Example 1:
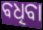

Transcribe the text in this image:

ବଧିବା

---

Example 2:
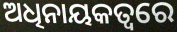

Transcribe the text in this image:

ଅଧିନାୟକତ୍ବରେ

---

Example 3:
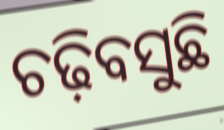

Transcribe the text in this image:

ଚଢ଼ିବସୁଛି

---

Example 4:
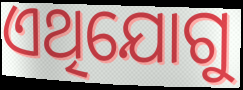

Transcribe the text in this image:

ଏଥିଯୋଗୁ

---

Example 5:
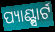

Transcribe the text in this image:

ପ୍ୟାଣ୍ଟ୍ସାର୍ଟ